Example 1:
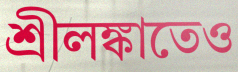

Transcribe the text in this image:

শ্রীলঙ্কাতেও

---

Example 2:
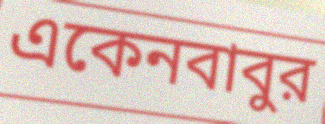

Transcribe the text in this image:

একেনবাবুর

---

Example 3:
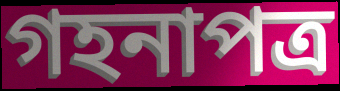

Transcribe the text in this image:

গহনাপত্র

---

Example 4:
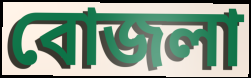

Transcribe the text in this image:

বোজলা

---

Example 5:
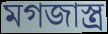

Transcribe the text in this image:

মগজাস্ত্র